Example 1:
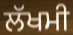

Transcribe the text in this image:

ਲੱਖਮੀ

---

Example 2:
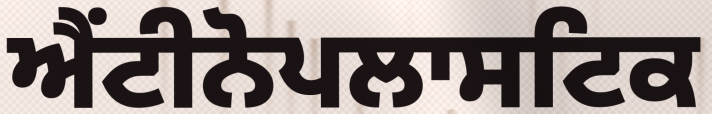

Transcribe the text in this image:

ਐਂਟੀਨੋਪਲਾਸਟਿਕ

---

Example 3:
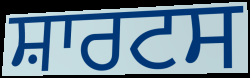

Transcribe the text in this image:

ਸ਼ਾਰਟਸ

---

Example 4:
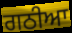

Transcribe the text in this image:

ਗਠੀਆ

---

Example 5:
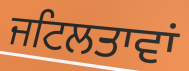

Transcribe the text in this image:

ਜਟਿਲਤਾਵਾਂ